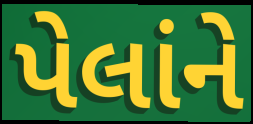
પેલાંને